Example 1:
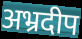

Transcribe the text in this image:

अभ्रदीप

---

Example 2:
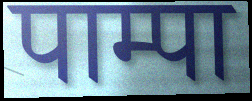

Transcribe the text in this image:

पाम्पा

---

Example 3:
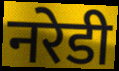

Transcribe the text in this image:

नरेडी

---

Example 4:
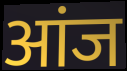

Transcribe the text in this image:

आंज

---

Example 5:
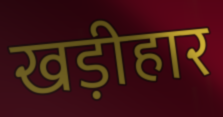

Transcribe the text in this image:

खड़ीहार